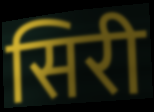
सिरी